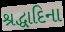
શ્રદ્ધાદિના